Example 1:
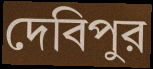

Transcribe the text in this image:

দেবিপুর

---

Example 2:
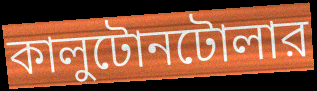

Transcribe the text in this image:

কালুটোনটোলার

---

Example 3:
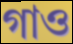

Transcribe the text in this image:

গাও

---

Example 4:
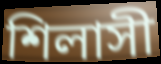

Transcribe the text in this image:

শিলাসী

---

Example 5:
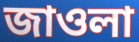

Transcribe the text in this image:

জাওলা